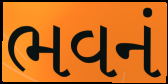
ભવનં